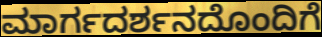
ಮಾರ್ಗದರ್ಶನದೊಂದಿಗೆ